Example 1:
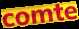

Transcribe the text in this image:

comte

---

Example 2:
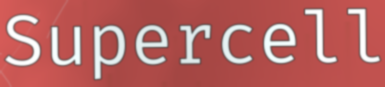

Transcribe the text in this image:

Supercell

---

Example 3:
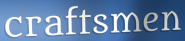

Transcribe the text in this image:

craftsmen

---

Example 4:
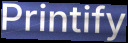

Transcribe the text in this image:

Printify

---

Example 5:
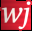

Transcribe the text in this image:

wj